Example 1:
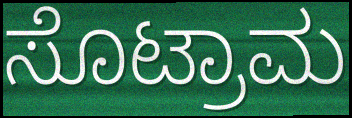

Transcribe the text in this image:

ಸೊಟ್ರಾಮ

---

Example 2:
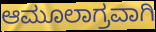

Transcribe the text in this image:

ಆಮೂಲಾಗ್ರವಾಗಿ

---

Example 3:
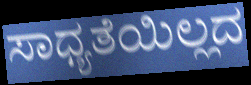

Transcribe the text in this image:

ಸಾಧ್ಯತೆಯಿಲ್ಲದ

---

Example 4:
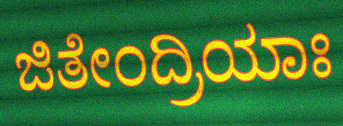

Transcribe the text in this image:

ಜಿತೇಂದ್ರಿಯಾಃ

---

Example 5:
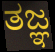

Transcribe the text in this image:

ತಜ್ಞ